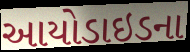
આયોડાઇડના